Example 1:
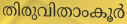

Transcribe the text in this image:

തിരുവിതാംകൂർ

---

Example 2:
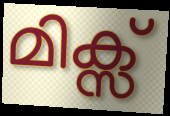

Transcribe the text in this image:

മിക്സ്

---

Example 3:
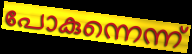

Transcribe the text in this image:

പോകുന്നെന്ന്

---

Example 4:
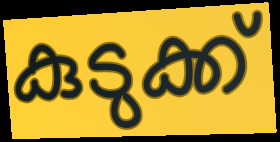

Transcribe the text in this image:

കുടുക്ക്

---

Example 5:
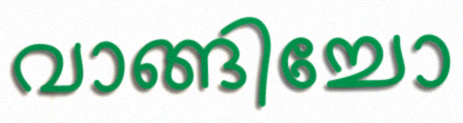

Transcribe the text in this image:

വാങ്ങിച്ചോ